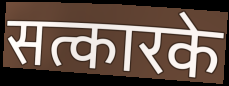
सत्कारके